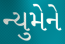
ન્યુમેને